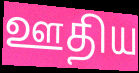
ஊதிய